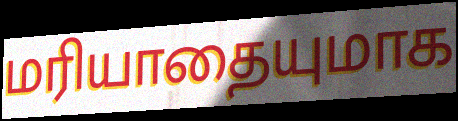
மரியாதையுமாக